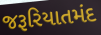
જરૂરિયાતમંદ